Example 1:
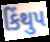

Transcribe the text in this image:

કિંથુપ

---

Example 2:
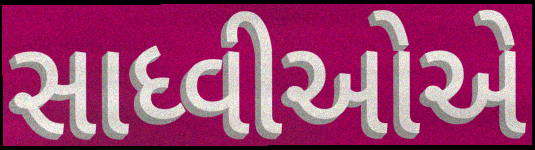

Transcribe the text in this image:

સાધ્વીઓએ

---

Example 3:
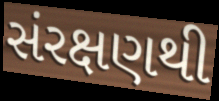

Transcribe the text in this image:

સંરક્ષણથી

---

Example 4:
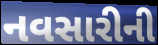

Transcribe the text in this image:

નવસારીની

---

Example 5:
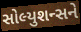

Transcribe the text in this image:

સોલ્યુશન્સને